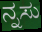
ನ್ನಸು